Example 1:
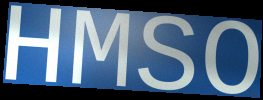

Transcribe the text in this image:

HMSO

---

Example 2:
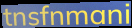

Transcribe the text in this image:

tnsfnmani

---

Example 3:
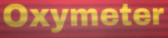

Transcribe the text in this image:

Oxymeter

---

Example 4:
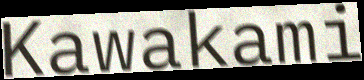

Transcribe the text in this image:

Kawakami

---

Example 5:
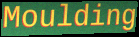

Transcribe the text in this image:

Moulding